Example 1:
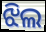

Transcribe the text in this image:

ଝିଲ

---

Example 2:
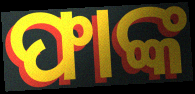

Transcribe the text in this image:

ଫାଙ୍କ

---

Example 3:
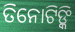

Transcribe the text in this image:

ତିନୋଟିଙ୍କି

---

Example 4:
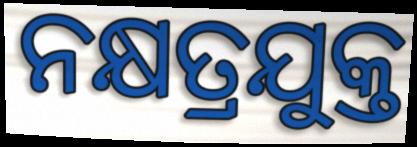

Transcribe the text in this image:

ନକ୍ଷତ୍ରଯୁକ୍ତ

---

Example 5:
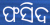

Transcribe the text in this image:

ଫସିଦ